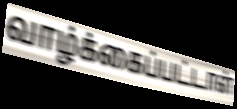
வாழ்க்கைப்பட்டாள்